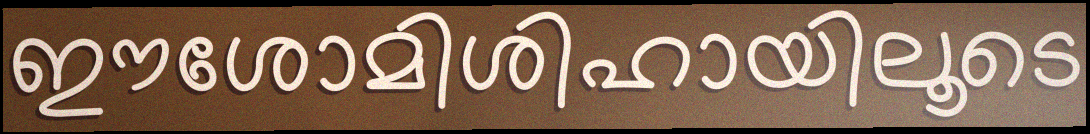
ഈശോമിശിഹായിലൂടെ